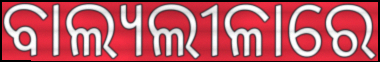
ବାଲ୍ୟଲୀଳାରେ